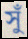
সুঁ